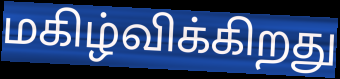
மகிழ்விக்கிறது